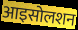
आइसोलशन